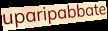
uparipabbate